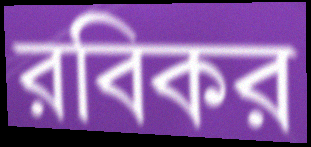
রবিকর